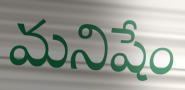
మనిషేం